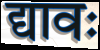
द्यावः